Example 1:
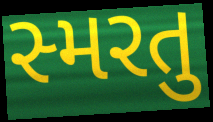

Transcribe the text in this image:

સ્મરતુ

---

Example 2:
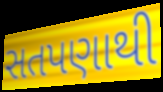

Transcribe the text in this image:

સતપણાથી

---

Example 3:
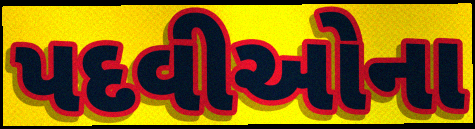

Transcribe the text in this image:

પદવીઓના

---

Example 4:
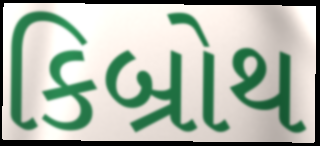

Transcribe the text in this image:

કિબ્રોથ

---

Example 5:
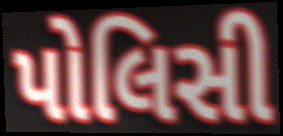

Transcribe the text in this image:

પોલિસી